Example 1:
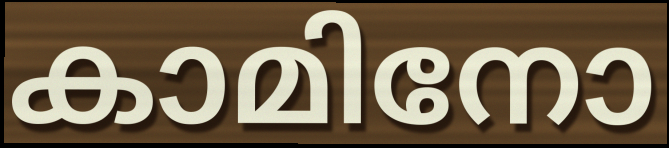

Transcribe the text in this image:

കാമിനോ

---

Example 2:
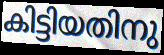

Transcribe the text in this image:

കിട്ടിയതിനു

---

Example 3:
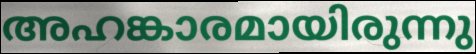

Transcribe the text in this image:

അഹങ്കാരമായിരുന്നു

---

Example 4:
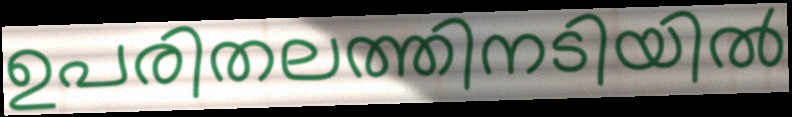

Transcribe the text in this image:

ഉപരിതലത്തിനടിയിൽ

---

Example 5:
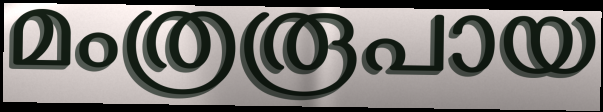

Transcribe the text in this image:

മംത്രരൂപായ